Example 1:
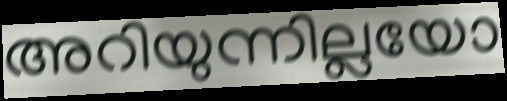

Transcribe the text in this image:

അറിയുന്നില്ലയോ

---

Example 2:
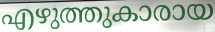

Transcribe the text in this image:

എഴുത്തുകാരായ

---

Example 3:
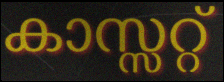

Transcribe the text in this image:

കാസ്സറ്റ്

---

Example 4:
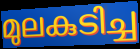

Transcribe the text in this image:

മുലകുടിച്ച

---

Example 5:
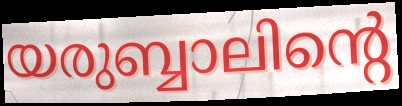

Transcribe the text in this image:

യരുബ്ബാലിന്റെ